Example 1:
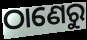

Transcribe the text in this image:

ଠାଣେରୁ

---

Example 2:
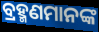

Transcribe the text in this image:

ବ୍ରହ୍ମଣମାନଙ୍କ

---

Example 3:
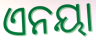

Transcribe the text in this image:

ଏନୟା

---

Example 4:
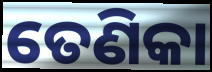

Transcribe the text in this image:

ତେଣିକା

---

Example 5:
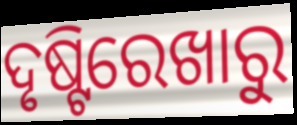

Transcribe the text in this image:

ଦୃଷ୍ଟିରେଖାରୁ